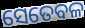
ସେତେବଳ